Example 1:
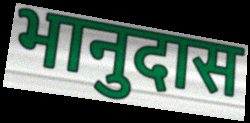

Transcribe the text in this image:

भानुदास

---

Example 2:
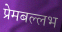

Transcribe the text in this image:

प्रेमबल्लभ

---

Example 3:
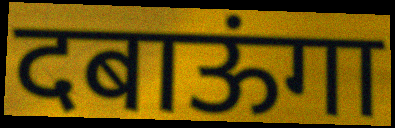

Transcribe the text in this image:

दबाऊंगा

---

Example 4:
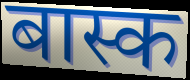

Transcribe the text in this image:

बास्क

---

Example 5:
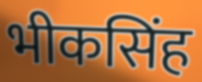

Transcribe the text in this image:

भीकसिंह